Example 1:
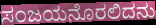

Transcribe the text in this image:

ಸಂಜಯನೊರಲಿದನು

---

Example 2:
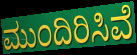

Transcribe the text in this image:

ಮುಂದಿರಿಸಿವೆ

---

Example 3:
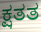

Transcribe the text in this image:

ಕ್ಷತತ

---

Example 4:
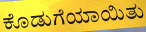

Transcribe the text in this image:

ಕೊಡುಗೆಯಾಯಿತು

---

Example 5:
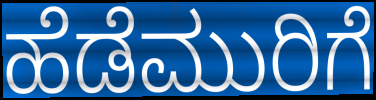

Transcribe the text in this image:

ಹೆಡೆಮುರಿಗೆ